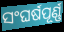
ସଂଘର୍ଷପୂର୍ଣ୍ଣ